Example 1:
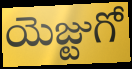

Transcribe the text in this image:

యెజ్టుగో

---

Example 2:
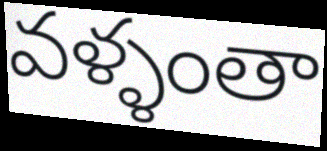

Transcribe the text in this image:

వళ్ళంతా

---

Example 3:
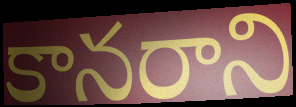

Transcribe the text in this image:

కానరాని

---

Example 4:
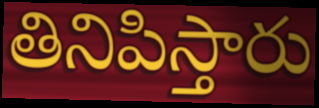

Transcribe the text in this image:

తినిపిస్తారు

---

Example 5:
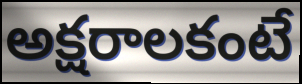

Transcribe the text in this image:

అక్షరాలకంటే